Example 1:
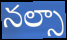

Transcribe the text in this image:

నల్సా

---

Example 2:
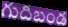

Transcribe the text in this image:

గుదిబండ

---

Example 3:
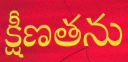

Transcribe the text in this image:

క్షీణతను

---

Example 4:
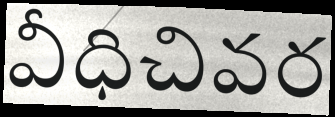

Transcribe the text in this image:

వీధిచివర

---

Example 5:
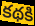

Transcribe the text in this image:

కథకి